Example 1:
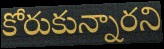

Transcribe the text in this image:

కోరుకున్నారని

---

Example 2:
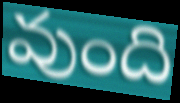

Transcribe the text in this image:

వుంది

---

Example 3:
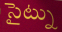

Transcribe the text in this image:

సైట్ను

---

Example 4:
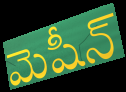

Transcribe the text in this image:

మెషీన్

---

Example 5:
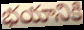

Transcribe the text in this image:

భయానికి